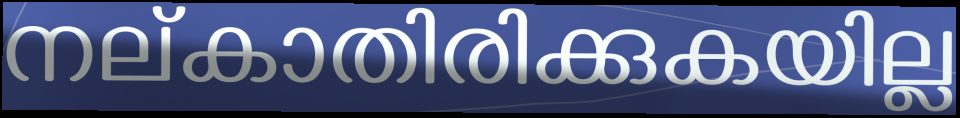
നല്‌കാതിരിക്കുകയില്ല